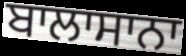
ਬਾਲਾਸਾਨਾ